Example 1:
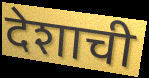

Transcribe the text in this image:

देशाची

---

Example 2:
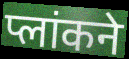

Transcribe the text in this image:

प्लांकने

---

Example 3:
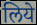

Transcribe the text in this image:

लिये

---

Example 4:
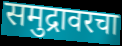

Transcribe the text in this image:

समुद्रावरचा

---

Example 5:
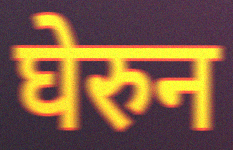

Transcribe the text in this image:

घेरुन